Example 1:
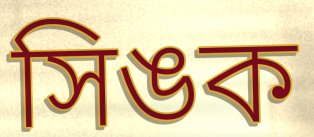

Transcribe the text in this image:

সিঙক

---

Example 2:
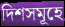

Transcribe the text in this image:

দিশসমূহে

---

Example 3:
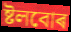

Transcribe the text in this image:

ষ্টলবোৰ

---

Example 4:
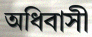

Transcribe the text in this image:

অধিবাসী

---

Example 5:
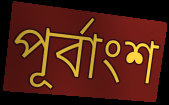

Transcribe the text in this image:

পূৰ্বাংশ